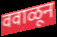
ववाळून